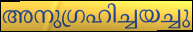
അനുഗ്രഹിച്ചയച്ചു